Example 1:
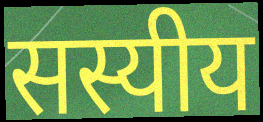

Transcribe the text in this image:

सस्यीय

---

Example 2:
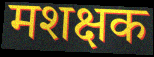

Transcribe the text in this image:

मशक्षक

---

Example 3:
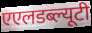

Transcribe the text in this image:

एएलडब्ल्यूटी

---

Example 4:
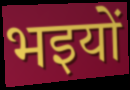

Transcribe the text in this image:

भइयों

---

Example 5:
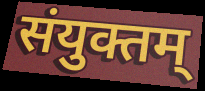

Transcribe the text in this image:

संयुक्तम्